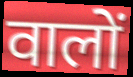
वालों